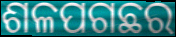
ଶଳପଗଛର